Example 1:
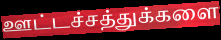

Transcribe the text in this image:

ஊட்டச்சத்துக்களை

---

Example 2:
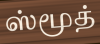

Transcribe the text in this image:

ஸ்மூத்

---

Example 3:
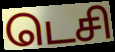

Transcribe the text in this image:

டெசி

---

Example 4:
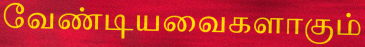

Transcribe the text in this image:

வேண்டியவைகளாகும்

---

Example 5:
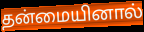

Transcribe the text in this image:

தன்மையினால்